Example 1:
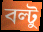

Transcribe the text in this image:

বল্টু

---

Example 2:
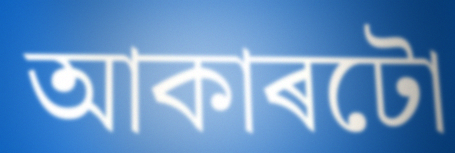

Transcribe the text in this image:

আকাৰটো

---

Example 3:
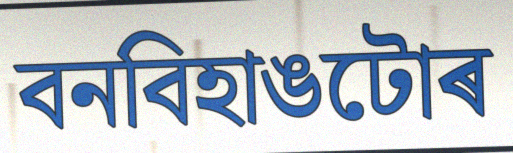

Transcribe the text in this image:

বনবিহাঙটোৰ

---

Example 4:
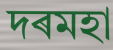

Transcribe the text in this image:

দৰমহা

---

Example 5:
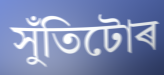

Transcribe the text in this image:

সুঁতিটোৰ